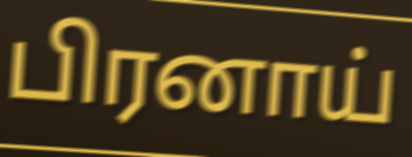
பிரனாய்